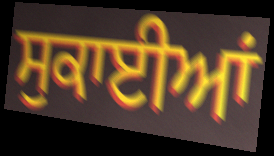
ਸੁਕਾਈਆਂ